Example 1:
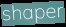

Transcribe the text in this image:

shaper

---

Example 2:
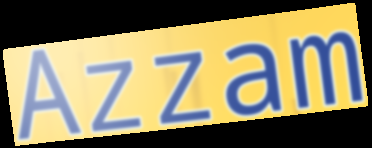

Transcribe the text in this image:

Azzam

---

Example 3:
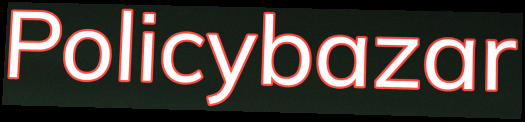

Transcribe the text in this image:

Policybazar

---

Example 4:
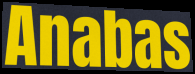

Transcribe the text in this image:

Anabas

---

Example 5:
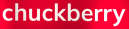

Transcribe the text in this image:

chuckberry